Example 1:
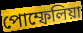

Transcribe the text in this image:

পোম্ফেলিয়া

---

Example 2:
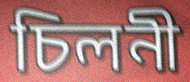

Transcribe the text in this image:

চিলনী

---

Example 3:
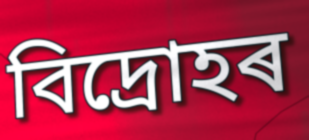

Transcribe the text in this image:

বিদ্ৰোহৰ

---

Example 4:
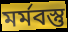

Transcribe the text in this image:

মৰ্মবস্তু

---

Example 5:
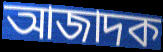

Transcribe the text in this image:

আজাদক